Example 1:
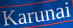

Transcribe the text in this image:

Karunai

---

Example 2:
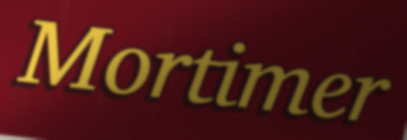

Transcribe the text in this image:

Mortimer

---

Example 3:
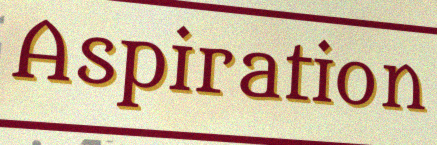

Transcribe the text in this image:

Aspiration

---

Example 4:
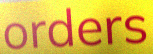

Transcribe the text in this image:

orders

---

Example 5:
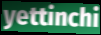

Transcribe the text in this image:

yettinchi